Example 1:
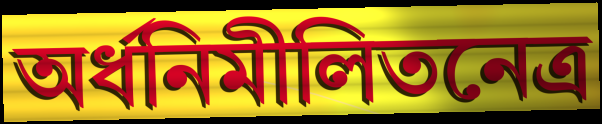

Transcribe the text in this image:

অর্ধনিমীলিতনেত্র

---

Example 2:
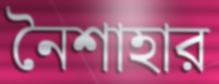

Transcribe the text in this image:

নৈশাহার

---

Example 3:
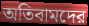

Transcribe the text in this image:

অতিবামদের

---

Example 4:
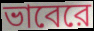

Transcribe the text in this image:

ভাবেরে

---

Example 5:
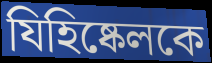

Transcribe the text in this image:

যিহিষ্কেলকে